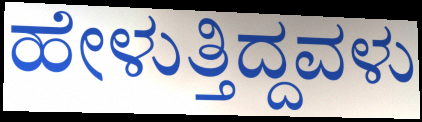
ಹೇಳುತ್ತಿದ್ದವಳು